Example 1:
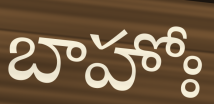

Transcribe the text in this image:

బాహోః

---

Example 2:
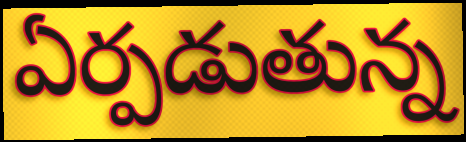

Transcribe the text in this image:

ఏర్పడుతున్న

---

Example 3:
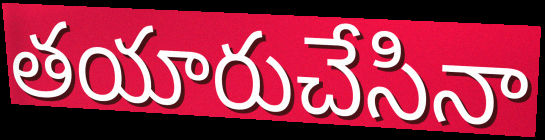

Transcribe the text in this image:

తయారుచేసినా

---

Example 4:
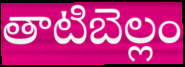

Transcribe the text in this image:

తాటిబెల్లం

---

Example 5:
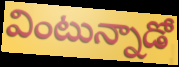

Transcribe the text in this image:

వింటున్నాడో